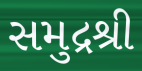
સમુદ્રશ્રી